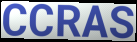
CCRAS